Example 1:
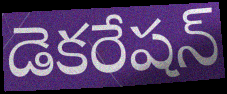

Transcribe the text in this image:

డెకరేషన్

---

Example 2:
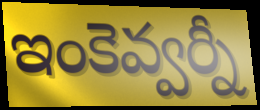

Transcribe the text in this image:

ఇంకెవ్వర్నీ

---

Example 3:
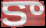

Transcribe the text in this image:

కా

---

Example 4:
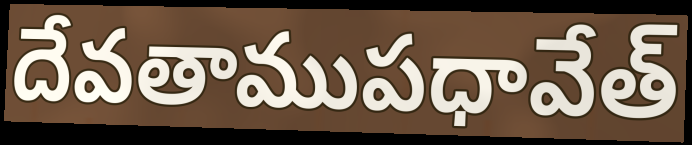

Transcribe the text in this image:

దేవతాముపధావేత్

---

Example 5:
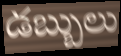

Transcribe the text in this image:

డబ్బులు